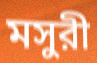
মসুরী